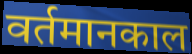
वर्तमानकाल